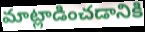
మాట్లాడించడానికి